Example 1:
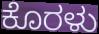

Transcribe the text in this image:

ಕೊರಳು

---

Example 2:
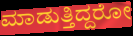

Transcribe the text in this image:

ಮಾಡುತ್ತಿದ್ದರೋ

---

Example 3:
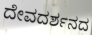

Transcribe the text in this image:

ದೇವದರ್ಶನದ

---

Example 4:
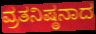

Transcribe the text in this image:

ವ್ರತನಿಷ್ಠನಾದ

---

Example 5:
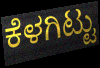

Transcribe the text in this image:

ಕೆಳಗಿಟ್ಟು